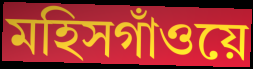
মহিসগাঁওয়ে